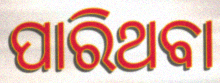
ପାରିଥବା